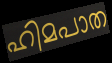
ഹിമപാത